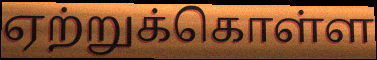
ஏற்றுக்கொள்ள